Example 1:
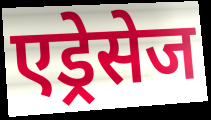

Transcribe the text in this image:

एड्रेसेज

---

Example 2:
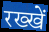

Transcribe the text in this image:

रख्खें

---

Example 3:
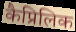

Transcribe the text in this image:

कैप्रिलिक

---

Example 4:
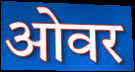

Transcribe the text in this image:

ओवर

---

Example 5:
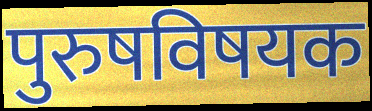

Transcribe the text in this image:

पुरुषविषयक